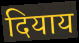
दियाय